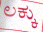
ಲಕ್ಕು